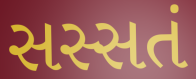
સસ્સતં